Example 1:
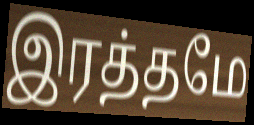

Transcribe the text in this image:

இரத்தமே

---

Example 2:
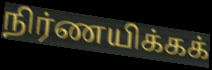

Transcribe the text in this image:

நிர்ணயிக்கக்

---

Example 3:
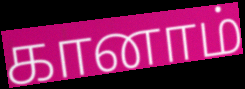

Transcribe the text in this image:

கானாம்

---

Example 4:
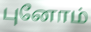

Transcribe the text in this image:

புனோம்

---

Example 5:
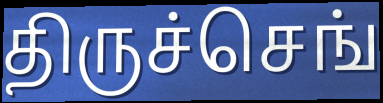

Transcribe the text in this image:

திருச்செங்